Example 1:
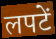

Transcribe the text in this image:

लपटें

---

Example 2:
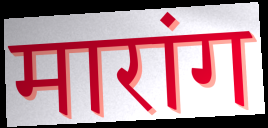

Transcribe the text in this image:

मारांग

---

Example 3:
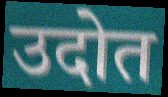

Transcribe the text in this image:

उदोत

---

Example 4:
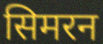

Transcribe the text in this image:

सिमरन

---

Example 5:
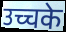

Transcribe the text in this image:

उच्चके